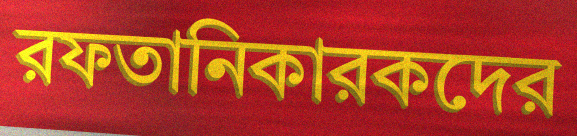
রফতানিকারকদের